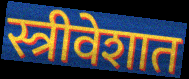
स्त्रीवेशात